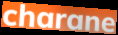
charane